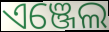
ଏଞ୍ଜେଲ